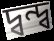
দ্বন্দ্ব